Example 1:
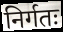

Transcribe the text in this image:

निर्गतः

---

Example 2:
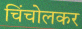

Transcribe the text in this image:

चिंचोलकर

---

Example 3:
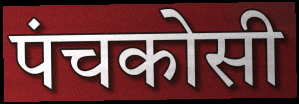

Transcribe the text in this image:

पंचकोसी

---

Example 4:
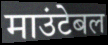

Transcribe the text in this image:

माउंटेबल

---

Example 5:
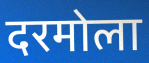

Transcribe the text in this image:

दरमोला